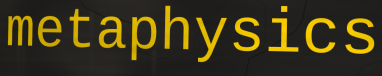
metaphysics